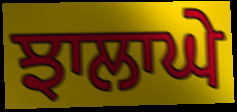
ਝਾਲਾਘੇ